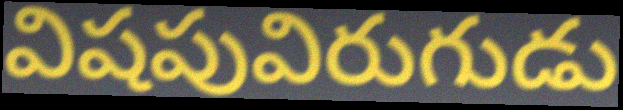
విషపువిరుగుడు